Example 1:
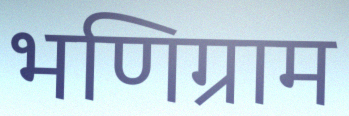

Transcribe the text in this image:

भणिग्राम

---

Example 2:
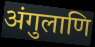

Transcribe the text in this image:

अंगुलाणि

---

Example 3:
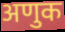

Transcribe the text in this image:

अणुक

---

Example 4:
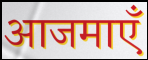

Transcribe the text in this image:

आजमाएँ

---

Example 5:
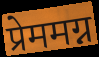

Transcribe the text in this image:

प्रेममग्न